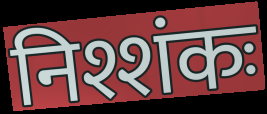
निश्शंकः